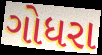
ગોધરા